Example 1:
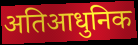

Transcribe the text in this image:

अतिआधुनिक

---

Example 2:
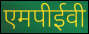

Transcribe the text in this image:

एमपीईवी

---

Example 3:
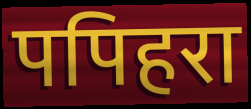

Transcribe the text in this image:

पपिहरा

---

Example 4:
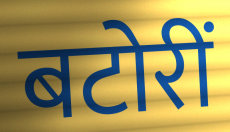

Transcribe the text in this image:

बटोरीं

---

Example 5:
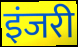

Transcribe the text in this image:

इंजरी